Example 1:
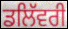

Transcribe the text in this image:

ਡਲਿੱਵਰੀ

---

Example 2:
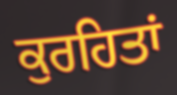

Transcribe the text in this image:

ਕੁਰਹਿਤਾਂ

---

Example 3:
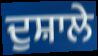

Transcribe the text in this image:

ਦੁਸ਼ਾਲੇ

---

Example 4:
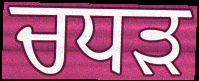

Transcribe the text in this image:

ਚਧੜ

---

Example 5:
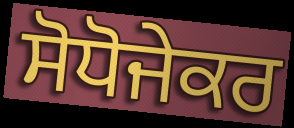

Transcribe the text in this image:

ਸੋਧੋਜੇਕਰ